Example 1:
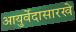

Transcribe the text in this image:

आयुर्वेदासारखे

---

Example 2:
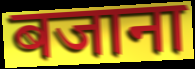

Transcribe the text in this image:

बजाना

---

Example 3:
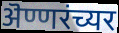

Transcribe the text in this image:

ऄण्णरंच्यर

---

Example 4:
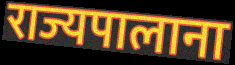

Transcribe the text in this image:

राज्यपालाना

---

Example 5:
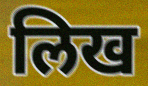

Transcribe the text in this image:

लिख